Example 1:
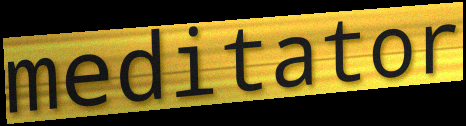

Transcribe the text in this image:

meditator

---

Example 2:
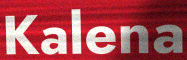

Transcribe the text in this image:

Kalena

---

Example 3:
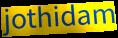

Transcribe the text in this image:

jothidam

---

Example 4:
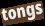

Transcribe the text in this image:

tongs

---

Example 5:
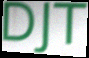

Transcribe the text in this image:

DJT